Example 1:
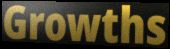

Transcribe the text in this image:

Growths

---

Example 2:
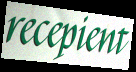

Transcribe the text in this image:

recepient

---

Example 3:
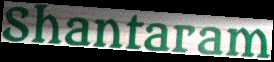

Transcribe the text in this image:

Shantaram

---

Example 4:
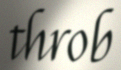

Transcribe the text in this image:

throb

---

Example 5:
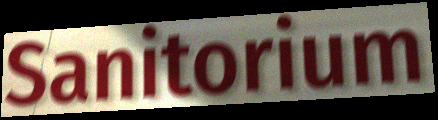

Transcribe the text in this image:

Sanitorium